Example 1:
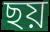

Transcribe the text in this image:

ছয়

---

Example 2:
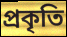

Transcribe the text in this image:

প্রকৃতি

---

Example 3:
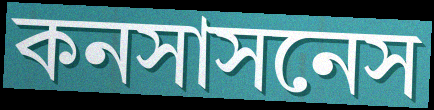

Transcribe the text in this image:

কনসাসনেস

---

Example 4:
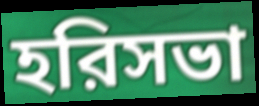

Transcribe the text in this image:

হরিসভা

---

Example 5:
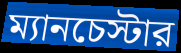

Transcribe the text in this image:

ম্যানচেস্টার